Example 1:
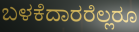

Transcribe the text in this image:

ಬಳಕೆದಾರರೆಲ್ಲರೂ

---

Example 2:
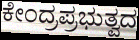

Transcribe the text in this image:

ಕೇಂದ್ರಪ್ರಭುತ್ವದ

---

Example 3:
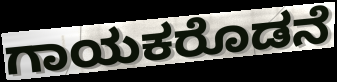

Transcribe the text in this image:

ಗಾಯಕರೊಡನೆ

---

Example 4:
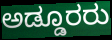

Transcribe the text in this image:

ಅಡ್ಡೂರರು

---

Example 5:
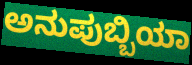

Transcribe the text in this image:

ಅನುಪುಬ್ಬಿಯಾ